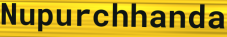
Nupurchhanda